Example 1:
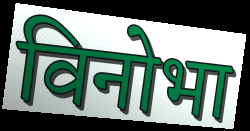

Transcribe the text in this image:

विनोभा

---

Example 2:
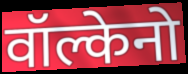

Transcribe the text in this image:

वॉल्केनो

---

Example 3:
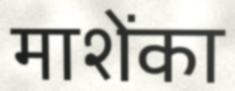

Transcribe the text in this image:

माशेंका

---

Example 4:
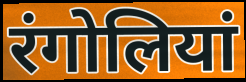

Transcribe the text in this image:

रंगोलियां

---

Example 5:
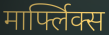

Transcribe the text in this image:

मार्फ्लिक्स